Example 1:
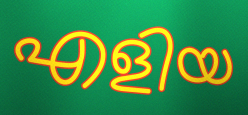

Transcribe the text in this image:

എളിയ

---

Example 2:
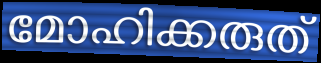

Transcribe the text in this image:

മോഹിക്കരുത്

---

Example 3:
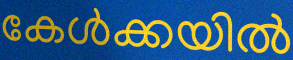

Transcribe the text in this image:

കേൾക്കയിൽ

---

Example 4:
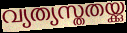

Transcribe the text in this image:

വ്യത്യസ്തതയ്ക്കു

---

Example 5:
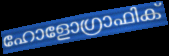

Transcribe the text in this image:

ഹോളോഗ്രാഫിക്